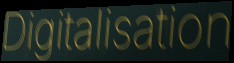
Digitalisation